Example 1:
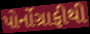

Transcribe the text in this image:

પોર્નોગ્રાફીથી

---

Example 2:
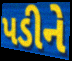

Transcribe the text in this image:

પડીને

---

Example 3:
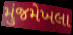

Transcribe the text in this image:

મુંજમેખલા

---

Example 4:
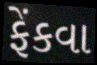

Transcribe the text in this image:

ફેંકવા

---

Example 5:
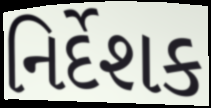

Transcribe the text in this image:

નિર્દેશક